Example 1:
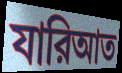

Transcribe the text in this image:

যারিআত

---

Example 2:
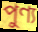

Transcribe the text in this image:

পুণ্য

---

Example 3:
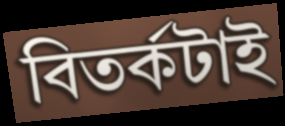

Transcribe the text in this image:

বিতর্কটাই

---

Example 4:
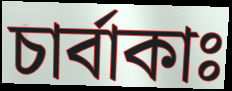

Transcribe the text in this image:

চার্বাকাঃ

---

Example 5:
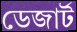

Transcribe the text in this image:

ডেজার্ট